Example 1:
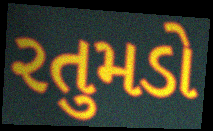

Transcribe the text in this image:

રતુમડો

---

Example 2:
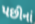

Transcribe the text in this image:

પછીનાં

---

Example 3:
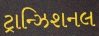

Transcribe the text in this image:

ટ્રાન્ઝિશનલ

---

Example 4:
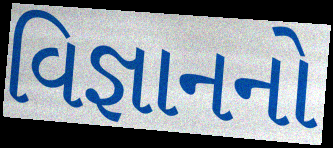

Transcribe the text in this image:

વિજ્ઞાનનો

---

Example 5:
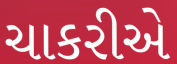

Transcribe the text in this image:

ચાકરીએ